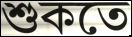
শুকতে